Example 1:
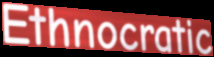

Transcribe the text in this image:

Ethnocratic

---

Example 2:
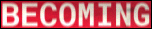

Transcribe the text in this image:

BECOMING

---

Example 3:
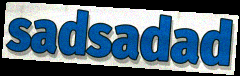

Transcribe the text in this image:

sadsadad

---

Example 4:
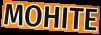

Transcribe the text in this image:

MOHITE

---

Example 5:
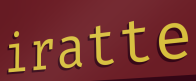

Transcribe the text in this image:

iratte